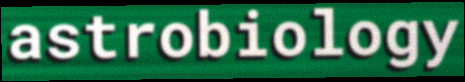
astrobiology